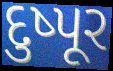
દુષ્પૂર